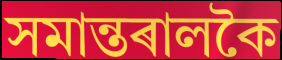
সমান্তৰালকৈ